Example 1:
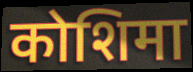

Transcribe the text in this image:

कोशिमा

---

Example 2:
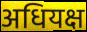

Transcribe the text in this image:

अधियक्ष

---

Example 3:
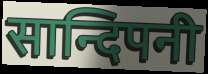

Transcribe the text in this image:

सान्दिपनी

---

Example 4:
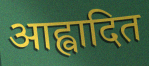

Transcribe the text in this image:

आह्वादित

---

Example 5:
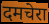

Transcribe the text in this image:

दमचेरा